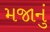
મજાનું